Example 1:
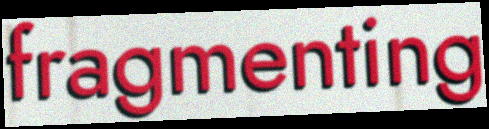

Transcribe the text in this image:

fragmenting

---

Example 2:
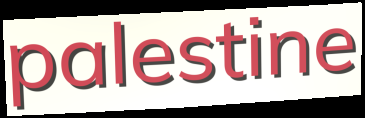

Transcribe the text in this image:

palestine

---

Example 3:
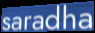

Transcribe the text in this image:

saradha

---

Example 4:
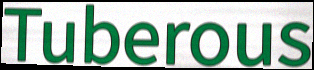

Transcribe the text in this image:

Tuberous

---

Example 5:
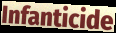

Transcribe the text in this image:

Infanticide